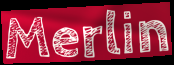
Merlin